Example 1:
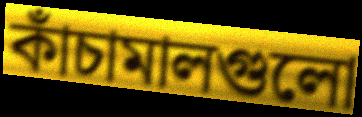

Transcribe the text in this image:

কাঁচামালগুলো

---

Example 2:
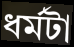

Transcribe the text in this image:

ধর্মটা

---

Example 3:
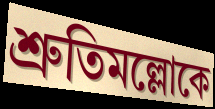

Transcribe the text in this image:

শ্রুতিমল্লোকে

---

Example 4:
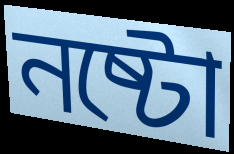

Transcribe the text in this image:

নষ্টো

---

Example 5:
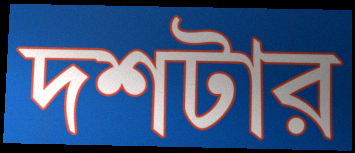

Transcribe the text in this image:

দশটার